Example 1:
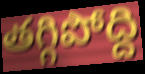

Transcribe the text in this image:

తగ్గిపోద్ది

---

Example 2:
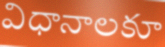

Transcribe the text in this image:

విధానాలకూ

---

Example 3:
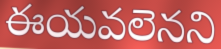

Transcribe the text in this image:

ఈయవలెనని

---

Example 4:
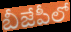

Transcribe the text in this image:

బీజేపీలో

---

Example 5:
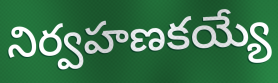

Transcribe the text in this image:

నిర్వహణకయ్యే